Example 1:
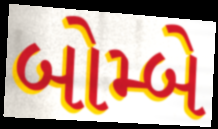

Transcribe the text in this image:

બોમ્બે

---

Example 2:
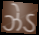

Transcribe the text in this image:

ઝેડ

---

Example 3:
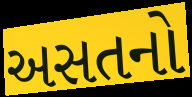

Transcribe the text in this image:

અસતનો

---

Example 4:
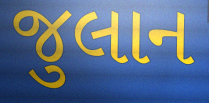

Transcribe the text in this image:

જુલાન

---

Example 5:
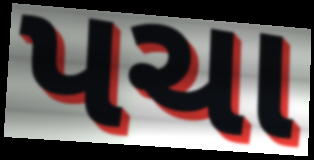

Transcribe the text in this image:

પચા